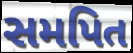
સમપિત